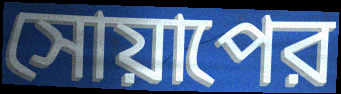
সোয়াপের